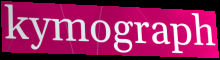
kymograph